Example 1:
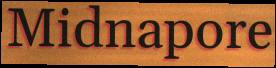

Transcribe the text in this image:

Midnapore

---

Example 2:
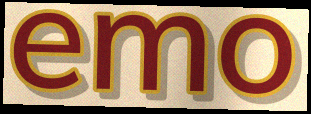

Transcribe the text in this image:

emo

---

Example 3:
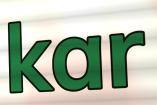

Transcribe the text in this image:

kar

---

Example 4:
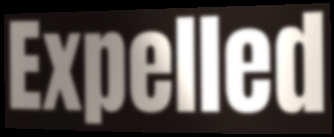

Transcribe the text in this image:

Expelled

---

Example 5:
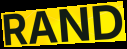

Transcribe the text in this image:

RAND